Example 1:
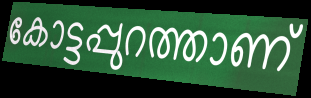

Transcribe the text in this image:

കോട്ടപ്പുറത്താണ്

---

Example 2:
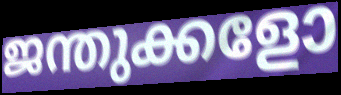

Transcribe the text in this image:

ജന്തുക്കളോ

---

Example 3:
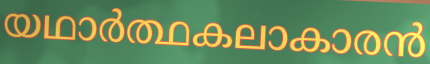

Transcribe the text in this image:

യഥാർത്ഥകലാകാരൻ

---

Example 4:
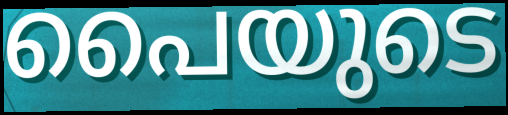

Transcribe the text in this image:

പൈയുടെ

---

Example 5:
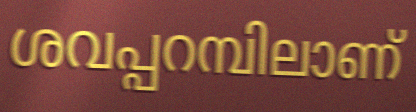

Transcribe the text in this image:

ശവപ്പറമ്പിലാണ്